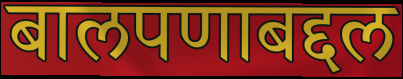
बालपणाबद्दल